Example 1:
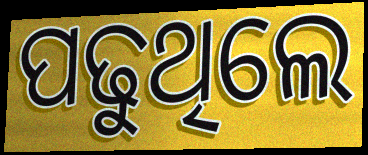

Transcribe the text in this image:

ପଢୁଥିଲେ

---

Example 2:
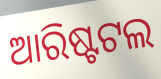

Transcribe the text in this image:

ଆରିଷ୍ଟଟଲ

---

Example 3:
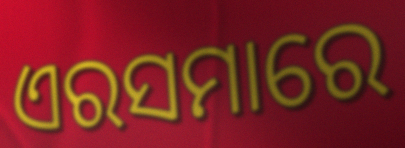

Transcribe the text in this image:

ଏରସମାରେ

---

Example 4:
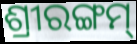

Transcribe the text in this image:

ଶ୍ରୀରଙ୍ଗମ୍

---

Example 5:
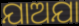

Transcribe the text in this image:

ଯାଅଯା